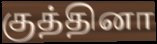
குத்தினா